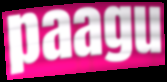
paagu